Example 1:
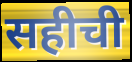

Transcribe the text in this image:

सहीची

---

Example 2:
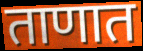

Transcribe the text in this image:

ताणात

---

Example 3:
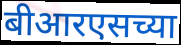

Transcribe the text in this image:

बीआरएसच्या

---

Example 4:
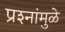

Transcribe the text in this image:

प्रश्‍नांमुळे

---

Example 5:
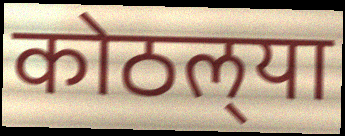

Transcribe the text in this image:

कोठल्या